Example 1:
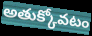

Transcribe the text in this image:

అతుక్కోవటం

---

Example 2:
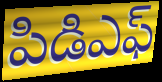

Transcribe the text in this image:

పిడిఎఫ్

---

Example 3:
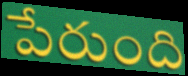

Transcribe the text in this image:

పేరుంది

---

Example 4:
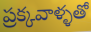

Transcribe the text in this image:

ప్రక్కవాళ్ళతో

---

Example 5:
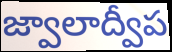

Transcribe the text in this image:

జ్వాలాద్వీప